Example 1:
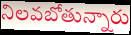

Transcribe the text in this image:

నిలవబోతున్నారు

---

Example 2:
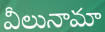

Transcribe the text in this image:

వీలునామా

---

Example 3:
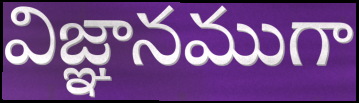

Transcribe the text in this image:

విజ్ఞానముగా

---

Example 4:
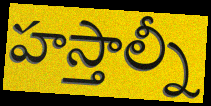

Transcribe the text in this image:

హస్తాల్నీ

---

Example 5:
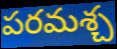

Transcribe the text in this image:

పరమశ్చ